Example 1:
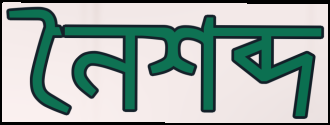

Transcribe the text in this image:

নৈশব্দ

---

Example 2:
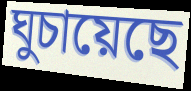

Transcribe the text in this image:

ঘুচায়েছে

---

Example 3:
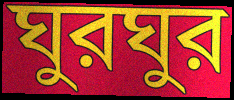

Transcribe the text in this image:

ঘুরঘুর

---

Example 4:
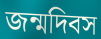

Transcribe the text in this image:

জন্মদিবস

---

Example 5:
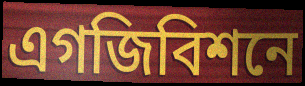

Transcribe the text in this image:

এগজিবিশনে